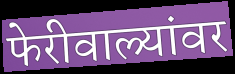
फेरीवाल्यांवर